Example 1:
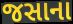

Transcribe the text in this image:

જસાના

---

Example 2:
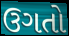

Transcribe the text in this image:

ઉગતો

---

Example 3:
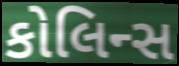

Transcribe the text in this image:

કોલિન્સ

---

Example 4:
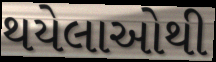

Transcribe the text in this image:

થયેલાઓથી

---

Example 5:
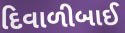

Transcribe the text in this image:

દિવાળીબાઈ